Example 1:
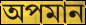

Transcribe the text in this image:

অপমান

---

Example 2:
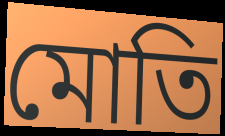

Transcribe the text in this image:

মোতি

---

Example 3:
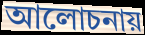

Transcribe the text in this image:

আলোচনায়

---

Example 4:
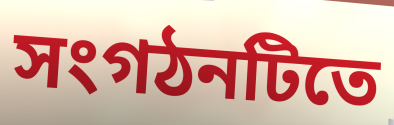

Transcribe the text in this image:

সংগঠনটিতে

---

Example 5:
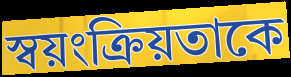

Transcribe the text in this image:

স্বয়ংক্রিয়তাকে